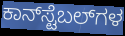
ಕಾನ್‌ಸ್ಟೆಬಲ್‌ಗಳ